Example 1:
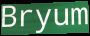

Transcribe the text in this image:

Bryum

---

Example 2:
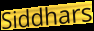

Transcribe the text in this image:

Siddhars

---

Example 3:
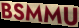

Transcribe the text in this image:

BSMMU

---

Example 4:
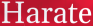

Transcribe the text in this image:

Harate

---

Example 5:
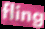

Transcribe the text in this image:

fling